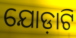
ଯୋଡ଼ାଟି